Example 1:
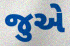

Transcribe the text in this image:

જુએ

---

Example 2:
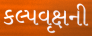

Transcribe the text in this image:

કલ્પવૃક્ષની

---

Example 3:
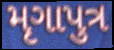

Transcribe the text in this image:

મૃગાપુત્ર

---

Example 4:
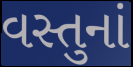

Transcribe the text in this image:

વસ્તુનાં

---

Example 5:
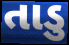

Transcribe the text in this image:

તાડુ